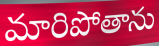
మారిపోతాను